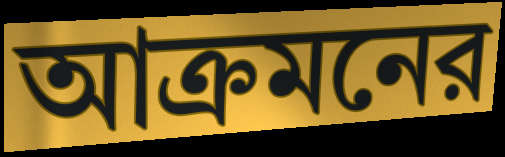
আক্রমনের